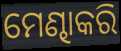
ମେଣ୍ଢାକରି